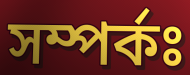
সম্পৰ্কঃ